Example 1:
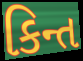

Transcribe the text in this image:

કિન્ત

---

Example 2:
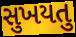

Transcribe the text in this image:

સુખયતુ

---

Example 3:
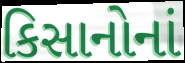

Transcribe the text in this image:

કિસાનોનાં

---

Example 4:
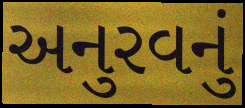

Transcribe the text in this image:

અનુરવનું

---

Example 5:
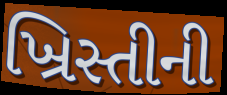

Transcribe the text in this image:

ખ્રિસ્તીની